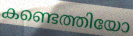
കണ്ടെത്തിയോ